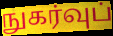
நுகர்வுப்